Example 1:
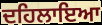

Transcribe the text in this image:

ਦਹਿਲਾਇਆ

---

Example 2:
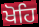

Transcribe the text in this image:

ਖੋਹਿ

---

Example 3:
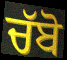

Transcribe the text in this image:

ਚੱਬੋ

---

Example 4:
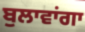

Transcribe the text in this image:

ਬੁਲਾਵਾਂਗਾ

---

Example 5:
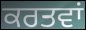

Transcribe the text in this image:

ਕਰਤਵਾਂ